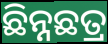
ଛିନ୍ନଛତ୍ର